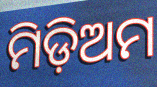
ମିଡ଼ିଅମ